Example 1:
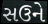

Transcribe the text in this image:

સઉને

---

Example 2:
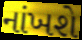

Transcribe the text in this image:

નાંખશે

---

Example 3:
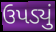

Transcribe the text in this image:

ઉપડ્યું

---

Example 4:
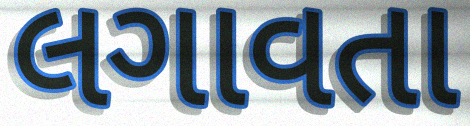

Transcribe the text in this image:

લગાવતા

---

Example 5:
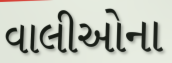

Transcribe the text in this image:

વાલીઓના